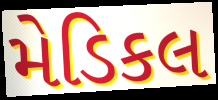
મેડિકલ